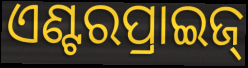
ଏଣ୍ଟରପ୍ରାଇଜ୍